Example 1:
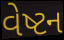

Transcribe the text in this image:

વેષ્ટન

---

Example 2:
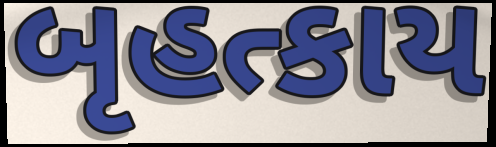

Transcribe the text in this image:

બૃહત્કાય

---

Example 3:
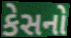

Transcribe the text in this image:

કેસનો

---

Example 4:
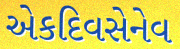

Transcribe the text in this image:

એકદિવસેનેવ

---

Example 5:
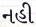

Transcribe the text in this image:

નહી